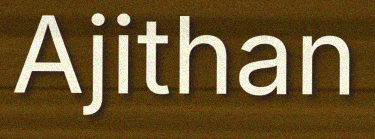
Ajithan